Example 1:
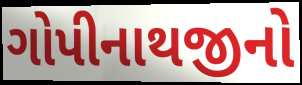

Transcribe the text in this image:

ગોપીનાથજીનો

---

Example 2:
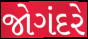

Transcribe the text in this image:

જોગંદરે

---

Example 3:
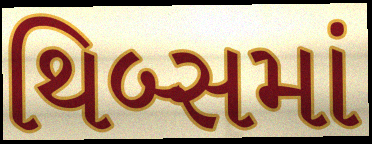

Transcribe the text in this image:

થિબ્સમાં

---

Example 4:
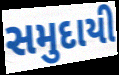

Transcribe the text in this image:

સમુદાયી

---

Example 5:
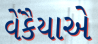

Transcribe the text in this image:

વેંકૈયાએ